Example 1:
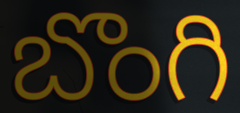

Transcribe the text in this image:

బొంగి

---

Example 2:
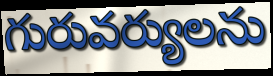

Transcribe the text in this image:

గురువర్యులను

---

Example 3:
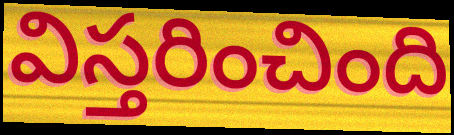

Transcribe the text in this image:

విస్తరించింది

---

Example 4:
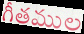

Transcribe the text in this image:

గీతముల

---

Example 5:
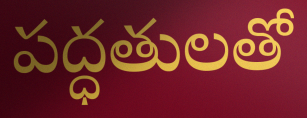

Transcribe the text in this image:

పద్ధతులతో